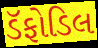
ડૅફોડિલ